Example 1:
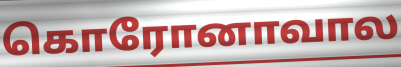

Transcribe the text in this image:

கொரோனாவால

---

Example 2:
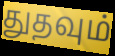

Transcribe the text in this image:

துதவும்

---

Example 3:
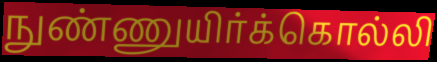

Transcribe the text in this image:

நுண்ணுயிர்க்கொல்லி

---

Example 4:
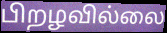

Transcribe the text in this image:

பிறழவில்லை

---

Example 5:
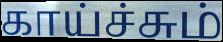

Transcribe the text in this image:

காய்ச்சும்